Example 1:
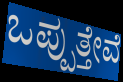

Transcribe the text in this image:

ಒಪ್ಪುತ್ತೇವೆ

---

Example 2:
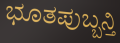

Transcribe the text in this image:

ಭೂತಪುಬ್ಬನ್ತಿ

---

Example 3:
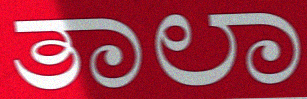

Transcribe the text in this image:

ತಾಲಾ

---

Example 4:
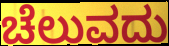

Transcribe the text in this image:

ಚೆಲುವದು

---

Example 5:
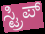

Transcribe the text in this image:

ಸ್ಟ್ರಿಪ್